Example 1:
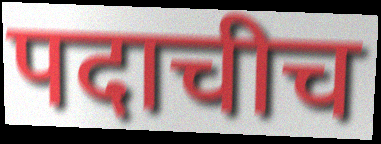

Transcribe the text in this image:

पदाचीच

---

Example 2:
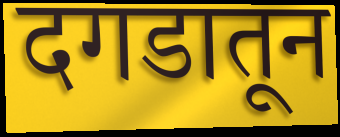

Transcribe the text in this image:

दगडातून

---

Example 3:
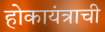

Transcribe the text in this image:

होकायंत्राची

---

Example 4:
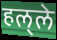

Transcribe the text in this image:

हल्ले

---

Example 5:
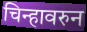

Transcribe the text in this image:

चिन्हावरुन